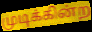
முடிக்கின்ற